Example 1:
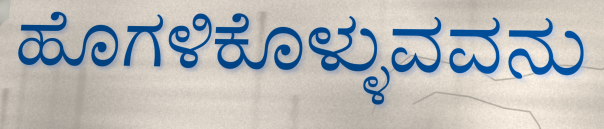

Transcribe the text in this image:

ಹೊಗಳಿಕೊಳ್ಳುವವನು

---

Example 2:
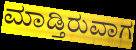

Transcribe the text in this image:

ಮಾಡ್ತಿರುವಾಗ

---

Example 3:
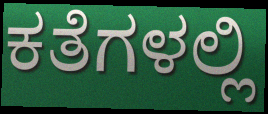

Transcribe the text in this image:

ಕತೆಗಳಲ್ಲಿ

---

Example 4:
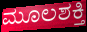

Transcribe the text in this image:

ಮೂಲಶಕ್ತಿ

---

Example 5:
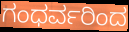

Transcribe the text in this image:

ಗಂಧರ್ವರಿಂದ